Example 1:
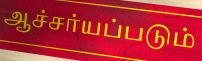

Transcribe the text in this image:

ஆச்சர்யப்படும்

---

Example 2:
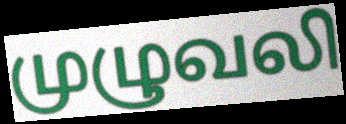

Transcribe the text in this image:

முழுவலி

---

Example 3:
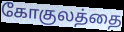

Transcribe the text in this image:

கோகுலத்தை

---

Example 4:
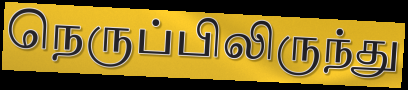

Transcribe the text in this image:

நெருப்பிலிருந்து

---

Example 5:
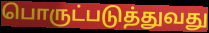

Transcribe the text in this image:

பொருட்படுத்துவது